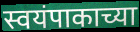
स्वयंपाकाच्या